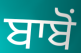
ਬਾਬੋਂ